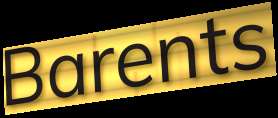
Barents